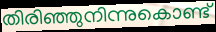
തിരിഞ്ഞുനിന്നുകൊണ്ട്